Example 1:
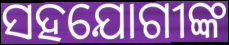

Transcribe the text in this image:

ସହଯୋଗୀଙ୍କ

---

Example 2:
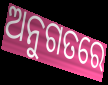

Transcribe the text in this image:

ଅନୁଗତରେ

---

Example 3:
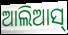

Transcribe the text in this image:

ଆଲିଆସ୍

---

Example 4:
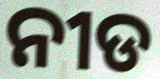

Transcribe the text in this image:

ନୀଡ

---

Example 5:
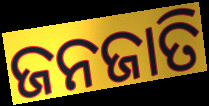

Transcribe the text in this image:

ଜନଜାତି